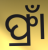
ଫ୍ରାଁ